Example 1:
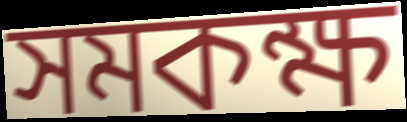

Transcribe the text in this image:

সমকক্ষ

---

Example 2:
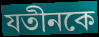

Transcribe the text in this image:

যতীনকে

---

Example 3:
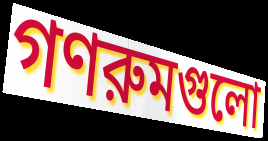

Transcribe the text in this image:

গণরুমগুলো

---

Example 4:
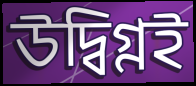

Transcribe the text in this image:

উদ্বিগ্নই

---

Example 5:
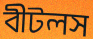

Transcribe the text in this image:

বীটলস